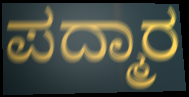
ಪದ್ಮಾರ